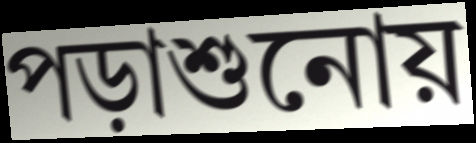
পড়াশুনোয়